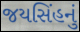
જયસિંહનું